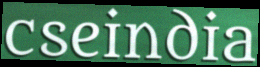
cseindia